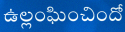
ఉల్లంఘించిందో